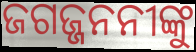
ଜଗଜ୍ଜନନୀଙ୍କୁ